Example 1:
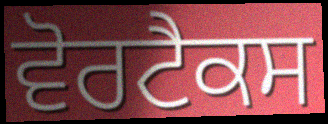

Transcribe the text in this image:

ਵੋਰਟੈਕਸ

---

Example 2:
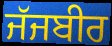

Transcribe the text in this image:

ਜੱਜਬੀਰ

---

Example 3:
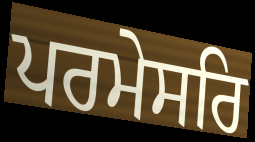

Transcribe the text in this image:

ਪਰਮੇਸਰਿ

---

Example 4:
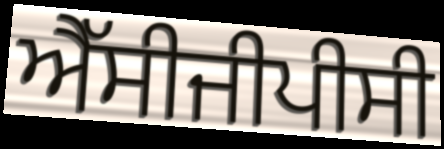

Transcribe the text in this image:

ਐੱਸੀਜੀਪੀਸੀ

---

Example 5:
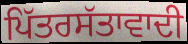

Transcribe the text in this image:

ਪਿੱਤਰਸੱਤਾਵਾਦੀ